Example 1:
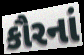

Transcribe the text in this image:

કૌરનાં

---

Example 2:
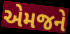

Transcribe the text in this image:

એમજને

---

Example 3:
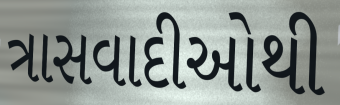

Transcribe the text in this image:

ત્રાસવાદીઓથી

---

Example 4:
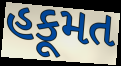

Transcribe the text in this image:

હકૂમત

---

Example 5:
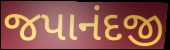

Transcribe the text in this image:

જપાનંદજી